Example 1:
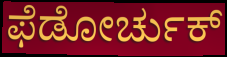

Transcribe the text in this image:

ಫೆಡೋರ್ಚುಕ್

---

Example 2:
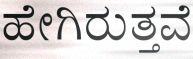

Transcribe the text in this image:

ಹೇಗಿರುತ್ತವೆ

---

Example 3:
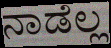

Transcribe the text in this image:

ನಾಡೆಲ್ಲ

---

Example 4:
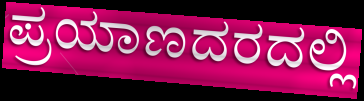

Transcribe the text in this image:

ಪ್ರಯಾಣದರದಲ್ಲಿ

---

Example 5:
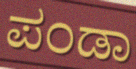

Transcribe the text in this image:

ಪಂಡಾ